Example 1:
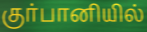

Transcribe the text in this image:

குர்பானியில்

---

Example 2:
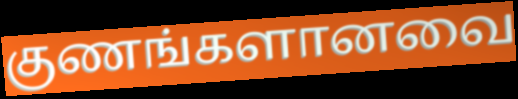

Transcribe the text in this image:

குணங்களானவை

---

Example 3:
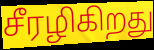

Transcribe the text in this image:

சீரழிகிறது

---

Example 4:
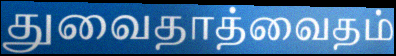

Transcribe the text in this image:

துவைதாத்வைதம்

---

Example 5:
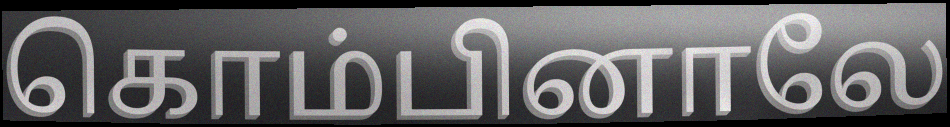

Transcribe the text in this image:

கொம்பினாலே